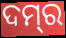
ଦମ୍‌ର